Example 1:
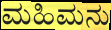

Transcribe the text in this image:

ಮಹಿಮನು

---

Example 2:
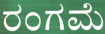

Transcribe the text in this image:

ರಂಗಮೆ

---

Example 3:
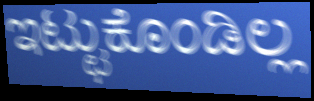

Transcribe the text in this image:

ಇಟ್ಟುಕೊಂಡಿಲ್ಲ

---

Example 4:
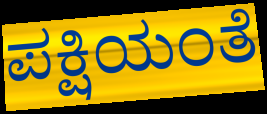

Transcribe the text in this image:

ಪಕ್ಷಿಯಂತೆ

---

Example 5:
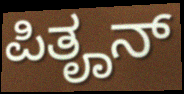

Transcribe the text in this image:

ಪಿತೄನ್